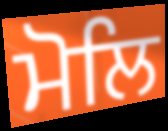
ਮੋਲਿ